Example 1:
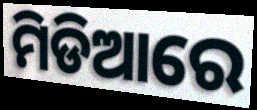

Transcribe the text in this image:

ମିଡିଆରେ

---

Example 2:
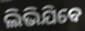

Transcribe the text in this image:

ଲିଭିଯିବେ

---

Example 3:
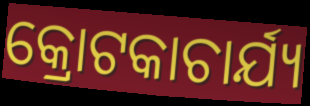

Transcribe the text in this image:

କ୍ରୋଟକାଚାର୍ଯ୍ୟ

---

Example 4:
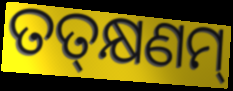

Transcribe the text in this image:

ତତ୍‌କ୍ଷଣମ୍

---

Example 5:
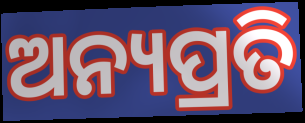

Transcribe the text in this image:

ଅନ୍ୟପ୍ରତି